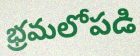
భ్రమలోపడి